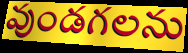
వుండగలను